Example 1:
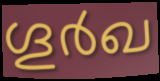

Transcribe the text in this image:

ഗൂർഖ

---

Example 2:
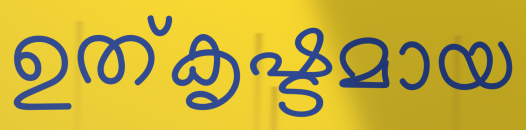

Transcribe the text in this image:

ഉത്കൃഷ്ടമായ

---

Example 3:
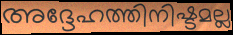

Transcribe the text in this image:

അദ്ദേഹത്തിനിഷ്ടമല്ല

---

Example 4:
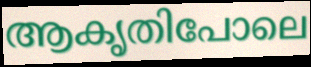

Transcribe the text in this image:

ആകൃതിപോലെ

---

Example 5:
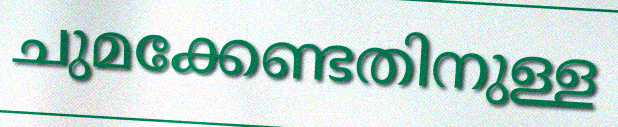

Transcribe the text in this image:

ചുമക്കേണ്ടതിനുള്ള